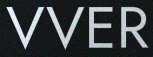
VVER